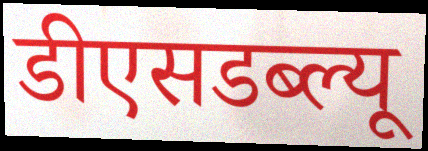
डीएसडब्ल्यू